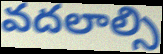
వదలాల్సి